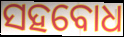
ସହବୋଧ